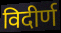
विदीर्ण